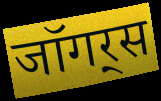
जॉगर्स